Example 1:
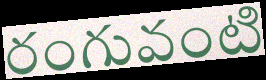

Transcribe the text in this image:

రంగువంటి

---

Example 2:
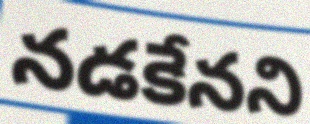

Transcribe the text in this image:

నడకేనని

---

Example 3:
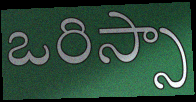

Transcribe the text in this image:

ఒరిస్సా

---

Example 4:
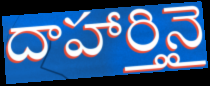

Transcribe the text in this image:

దాహార్తినై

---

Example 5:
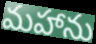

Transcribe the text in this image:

మహాను